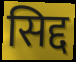
सिद्द